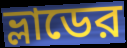
ভ্লাডের